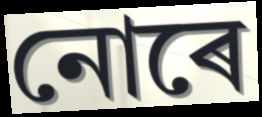
নোৰে